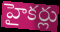
హైకర్లు